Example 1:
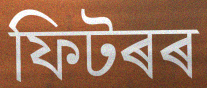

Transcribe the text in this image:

ফিটৰৰ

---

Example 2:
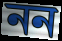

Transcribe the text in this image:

নন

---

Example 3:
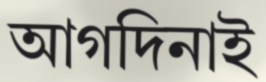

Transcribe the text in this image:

আগদিনাই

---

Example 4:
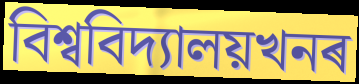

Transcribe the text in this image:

বিশ্ববিদ্যালয়খনৰ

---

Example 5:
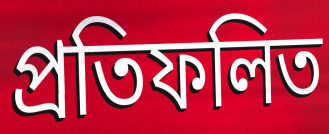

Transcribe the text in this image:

প্ৰতিফলিত